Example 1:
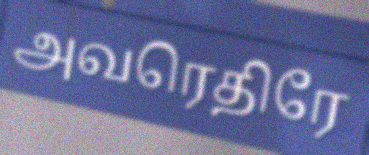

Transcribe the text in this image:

அவரெதிரே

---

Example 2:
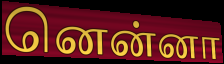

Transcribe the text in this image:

னென்னா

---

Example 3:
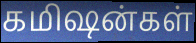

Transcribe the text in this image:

கமிஷன்கள்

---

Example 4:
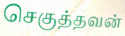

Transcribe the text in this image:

செகுத்தவன்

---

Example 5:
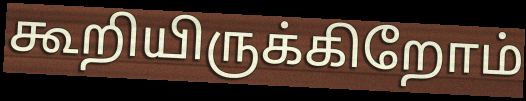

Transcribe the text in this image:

கூறியிருக்கிறோம்